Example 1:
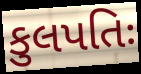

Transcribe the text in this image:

કુલપતિઃ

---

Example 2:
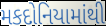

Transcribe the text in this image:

મકદોનિયામાંથી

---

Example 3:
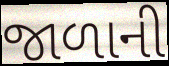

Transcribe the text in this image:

જાળાની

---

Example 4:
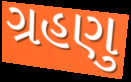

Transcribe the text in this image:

ગ્રહણુ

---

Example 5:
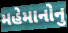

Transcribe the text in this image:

મહેમાનોનુ